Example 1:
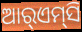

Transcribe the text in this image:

ଆର୍‌ଏମ୍‌ସି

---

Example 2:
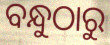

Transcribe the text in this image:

ବନ୍ଧୁଠାରୁ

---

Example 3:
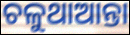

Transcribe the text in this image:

ଚଳୁଥାଆନ୍ତା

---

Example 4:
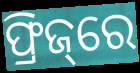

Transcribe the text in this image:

ଫ୍ରିଜ୍‌ରେ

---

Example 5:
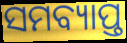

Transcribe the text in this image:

ସମବ୍ୟାପ୍ତ